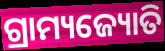
ଗ୍ରାମ୍ୟଜ୍ୟୋତି